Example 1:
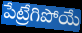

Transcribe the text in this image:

పేట్రేగిపోయే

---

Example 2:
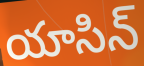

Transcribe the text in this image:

యాసిన్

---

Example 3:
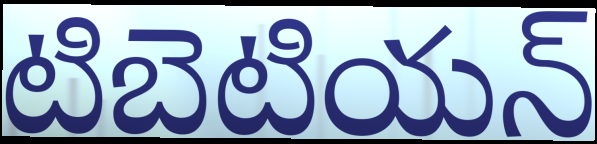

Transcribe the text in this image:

టిబెటియన్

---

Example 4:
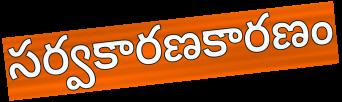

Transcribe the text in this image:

సర్వకారణకారణం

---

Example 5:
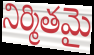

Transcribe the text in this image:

నిర్మితమై